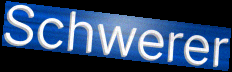
Schwerer